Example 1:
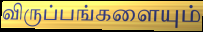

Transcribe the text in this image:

விருப்பங்களையும்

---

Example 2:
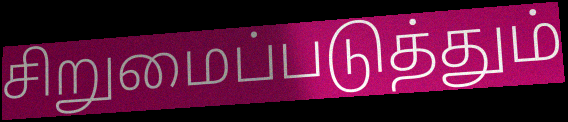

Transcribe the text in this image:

சிறுமைப்படுத்தும்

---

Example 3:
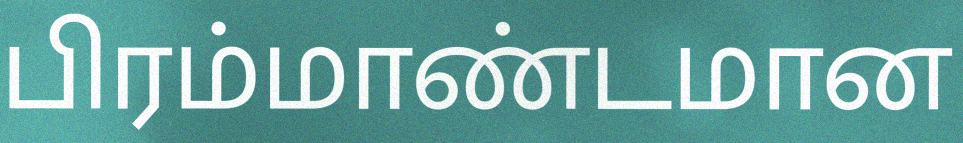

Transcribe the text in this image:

பிரம்மாண்டமான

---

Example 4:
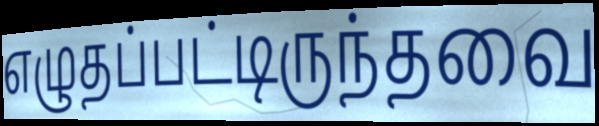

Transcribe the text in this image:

எழுதப்பட்டிருந்தவை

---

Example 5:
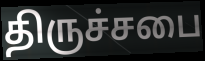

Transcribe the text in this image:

திருச்சபை